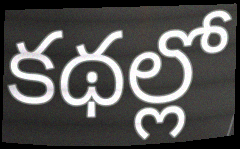
కథల్లో